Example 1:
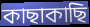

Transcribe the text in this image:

কাছাকাছি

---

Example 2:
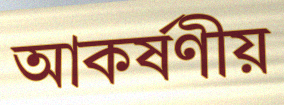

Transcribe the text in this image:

আকর্ষণীয়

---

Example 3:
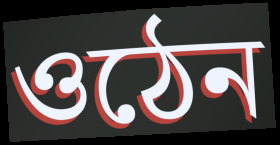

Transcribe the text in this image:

ওঠেন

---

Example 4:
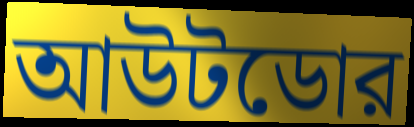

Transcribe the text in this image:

আউটডোর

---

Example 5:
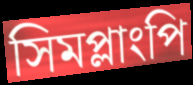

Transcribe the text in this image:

সিমপ্লাংপি